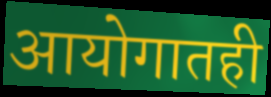
आयोगातही